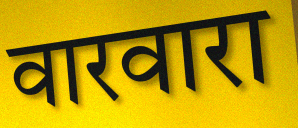
वारवारा